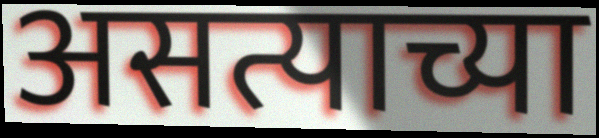
असत्याच्या